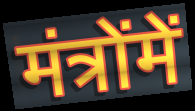
मंत्रोंमें